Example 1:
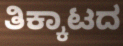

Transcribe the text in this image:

ತಿಕ್ಕಾಟದ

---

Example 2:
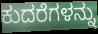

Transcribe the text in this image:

ಕುದರೆಗಳನ್ನು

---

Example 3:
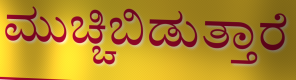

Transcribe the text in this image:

ಮುಚ್ಚಿಬಿಡುತ್ತಾರೆ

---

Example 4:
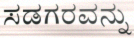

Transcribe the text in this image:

ಸಡಗರವನ್ನು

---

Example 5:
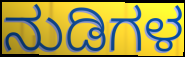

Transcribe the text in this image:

ನುಡಿಗಳ